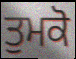
ਤੁਮਕੋ